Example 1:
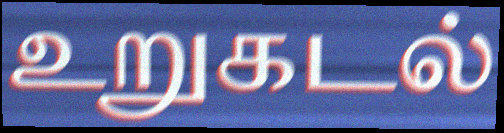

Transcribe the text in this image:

உறுகடல்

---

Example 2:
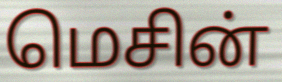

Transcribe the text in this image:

மெசின்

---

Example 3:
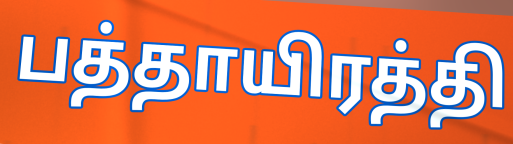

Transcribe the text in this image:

பத்தாயிரத்தி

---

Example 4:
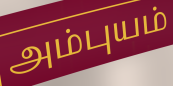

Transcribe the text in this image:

அம்புயம்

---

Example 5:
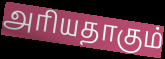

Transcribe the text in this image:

அரியதாகும்